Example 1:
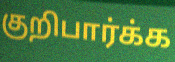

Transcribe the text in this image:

குறிபார்க்க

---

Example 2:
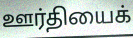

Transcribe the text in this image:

ஊர்தியைக்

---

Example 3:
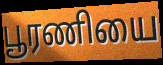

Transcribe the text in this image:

பூரணியை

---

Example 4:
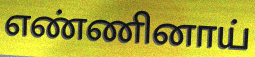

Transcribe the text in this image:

எண்ணினாய்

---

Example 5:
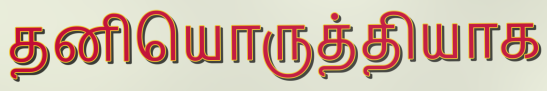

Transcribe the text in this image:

தனியொருத்தியாக